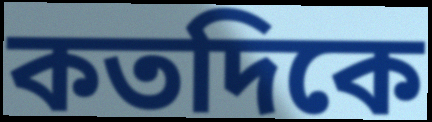
কতদিকে